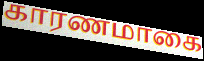
காரணமாகை